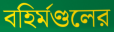
বহির্মণ্ডলের